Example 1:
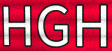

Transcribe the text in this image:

HGH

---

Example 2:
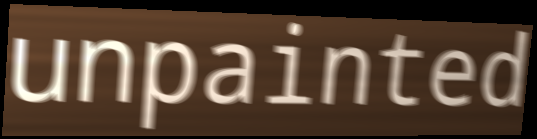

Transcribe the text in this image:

unpainted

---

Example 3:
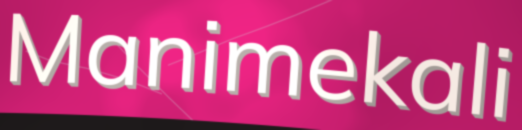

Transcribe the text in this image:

Manimekali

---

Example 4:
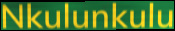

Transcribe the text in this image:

Nkulunkulu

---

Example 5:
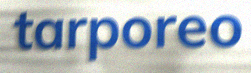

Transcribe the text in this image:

tarporeo